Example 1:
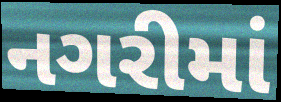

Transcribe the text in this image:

નગરીમાં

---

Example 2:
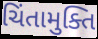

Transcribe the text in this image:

ચિંતામુક્તિ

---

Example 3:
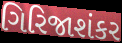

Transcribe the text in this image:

ગિરિજાશંકર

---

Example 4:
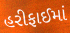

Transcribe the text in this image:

હરીફાઈમાં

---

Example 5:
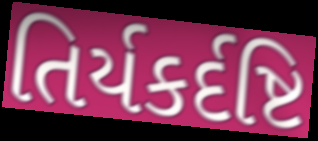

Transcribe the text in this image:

તિર્યકર્દષ્ટિ